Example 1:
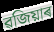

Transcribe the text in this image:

ৱজিয়াৰ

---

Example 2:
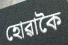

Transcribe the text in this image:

হোৱাকৈ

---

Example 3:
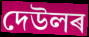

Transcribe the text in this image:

দেউলৰ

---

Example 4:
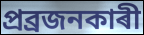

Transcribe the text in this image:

প্ৰব্ৰজনকাৰী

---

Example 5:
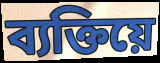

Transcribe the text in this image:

ব্যক্তিয়ে